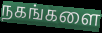
நகங்களை